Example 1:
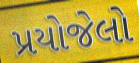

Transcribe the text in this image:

પ્રયોજેલો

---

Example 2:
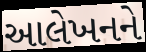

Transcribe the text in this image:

આલેખનને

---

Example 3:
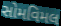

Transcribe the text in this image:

સોમવિમલ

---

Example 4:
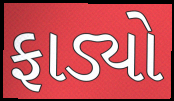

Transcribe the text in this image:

ફાડ્યો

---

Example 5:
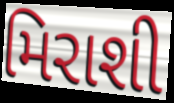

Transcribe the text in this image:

મિરાશી